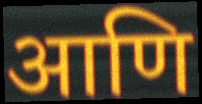
आणि